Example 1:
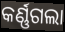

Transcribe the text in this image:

କର୍ଣ୍ଣଗଲା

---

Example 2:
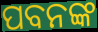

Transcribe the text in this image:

ପବନଙ୍କ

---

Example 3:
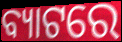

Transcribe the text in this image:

ବ୍ୟାଟରେ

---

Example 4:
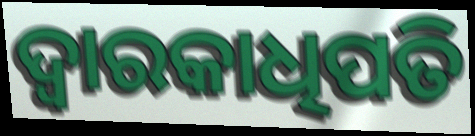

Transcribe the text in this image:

ଦ୍ୱାରକାଧିପତି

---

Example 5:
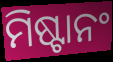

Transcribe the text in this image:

ମିଷ୍ଟାନଂ